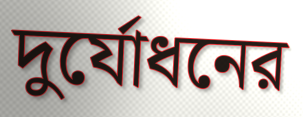
দুর্যোধনের